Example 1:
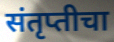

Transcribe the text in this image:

संतृप्तीचा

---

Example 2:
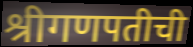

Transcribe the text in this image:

श्रीगणपतीची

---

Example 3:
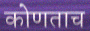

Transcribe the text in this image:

कोणताच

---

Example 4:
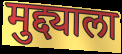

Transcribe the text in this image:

मुद्द्याला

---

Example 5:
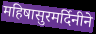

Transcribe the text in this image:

महिषासुरमर्दिनीने